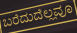
ಬರೆದುದೆಲ್ಲವೂ